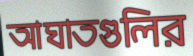
আঘাতগুলির